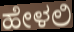
ಹೇಳಲಿ